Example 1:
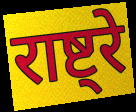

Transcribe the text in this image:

राष्ट्रे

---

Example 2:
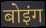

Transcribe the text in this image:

बोइंग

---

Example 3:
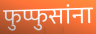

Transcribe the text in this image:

फुप्फुसांना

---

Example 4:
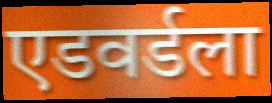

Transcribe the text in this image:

एडवर्डला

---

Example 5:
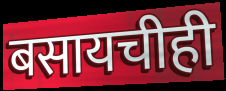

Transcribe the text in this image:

बसायचीही